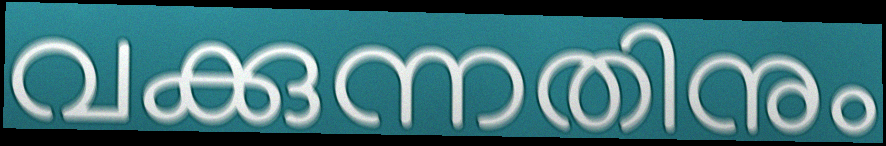
വക്കുന്നതിനും